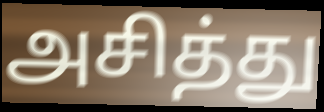
அசித்து